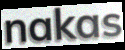
nakas